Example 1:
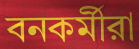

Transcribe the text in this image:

বনকর্মীরা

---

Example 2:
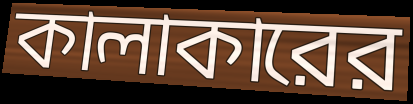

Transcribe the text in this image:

কালাকারের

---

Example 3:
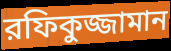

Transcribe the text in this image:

রফিকুজ্জামান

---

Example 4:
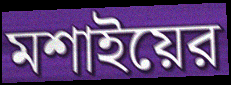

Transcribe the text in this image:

মশাইয়ের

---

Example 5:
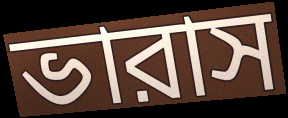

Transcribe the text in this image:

ভারাস